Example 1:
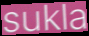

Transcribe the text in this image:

sukla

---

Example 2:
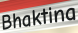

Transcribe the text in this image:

Bhaktina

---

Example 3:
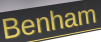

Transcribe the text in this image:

Benham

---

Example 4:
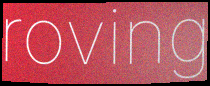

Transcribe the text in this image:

roving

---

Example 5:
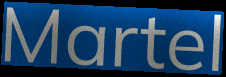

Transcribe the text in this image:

Martel